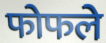
फोफले